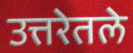
उत्तरेतले